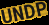
UNDP